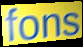
fons